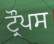
ਟ੍ਰੌਪਸ